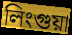
লিংগুয়া